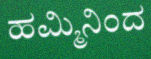
ಹಮ್ಮಿನಿಂದ